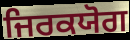
ਜਿਰਕਯੋਗ